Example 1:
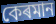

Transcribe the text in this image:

কেৰমান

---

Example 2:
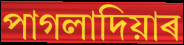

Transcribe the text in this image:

পাগলাদিয়াৰ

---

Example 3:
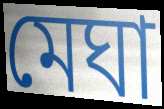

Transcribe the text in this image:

মেঘা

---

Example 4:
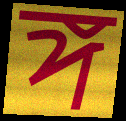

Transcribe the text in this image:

ঙ্গ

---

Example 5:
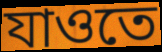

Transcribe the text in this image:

যাওতে